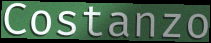
Costanzo